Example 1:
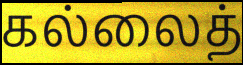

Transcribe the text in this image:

கல்லைத்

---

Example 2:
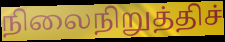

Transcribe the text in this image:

நிலைநிறுத்திச்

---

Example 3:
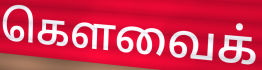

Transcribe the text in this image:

கௌவைக்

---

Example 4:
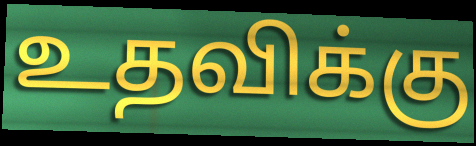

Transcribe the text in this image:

உதவிக்கு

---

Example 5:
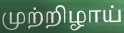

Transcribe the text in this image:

முற்றிழாய்